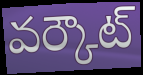
వర్కౌట్